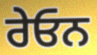
ਰੇਓਨ